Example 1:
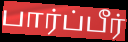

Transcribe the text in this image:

பார்ப்பீர்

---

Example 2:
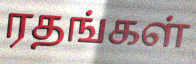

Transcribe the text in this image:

ரதங்கள்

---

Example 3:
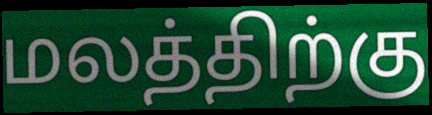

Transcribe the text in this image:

மலத்திற்கு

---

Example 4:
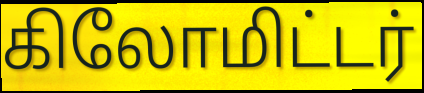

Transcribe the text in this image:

கிலோமிட்டர்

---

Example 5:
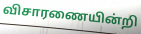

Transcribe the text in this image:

விசாரணையின்றி